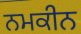
ਨਮਕੀਨ